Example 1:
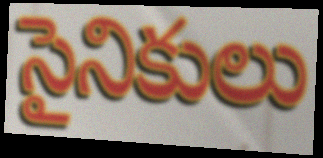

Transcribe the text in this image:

సైనికులు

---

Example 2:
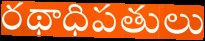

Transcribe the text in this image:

రథాధిపతులు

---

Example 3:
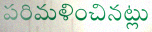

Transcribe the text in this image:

పరిమళించినట్లు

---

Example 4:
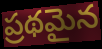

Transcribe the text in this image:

ప్రథమైన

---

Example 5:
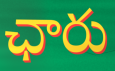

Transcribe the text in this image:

ఛారు